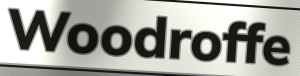
Woodroffe